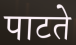
पाटते